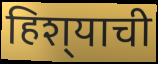
हिश्याची